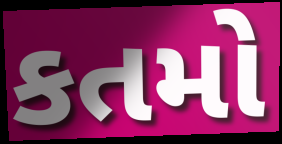
કતમો